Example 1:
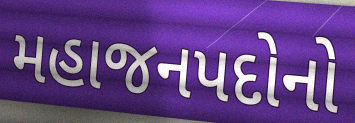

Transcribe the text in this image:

મહાજનપદોનો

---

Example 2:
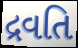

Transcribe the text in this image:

દ્રવતિ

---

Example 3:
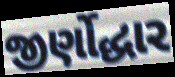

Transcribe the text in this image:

જીર્ણોદ્ધાર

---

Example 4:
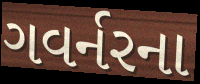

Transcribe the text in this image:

ગવર્નરના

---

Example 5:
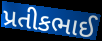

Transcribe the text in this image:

પ્રતીકભાઈ